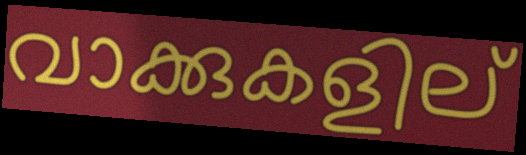
വാക്കുകളില്